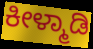
ಕೀಳ್ಮಾಡಿ